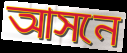
আসনে